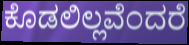
ಕೊಡಲಿಲ್ಲವೆಂದರೆ